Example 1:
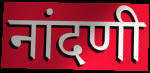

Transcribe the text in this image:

नांदणी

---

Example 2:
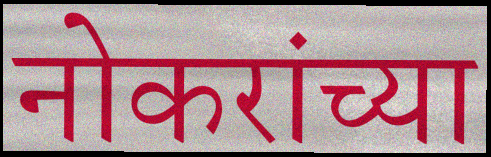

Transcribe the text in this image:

नोकरांच्या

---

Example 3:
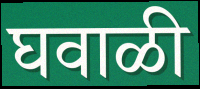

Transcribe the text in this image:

घवाळी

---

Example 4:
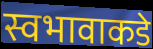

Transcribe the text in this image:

स्वभावाकडे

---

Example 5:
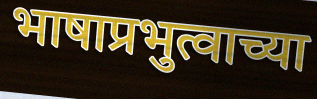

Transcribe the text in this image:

भाषाप्रभुत्वाच्या